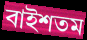
বাইশতম